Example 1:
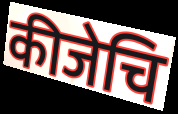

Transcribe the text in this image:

कीजेचि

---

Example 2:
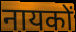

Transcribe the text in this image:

नायकों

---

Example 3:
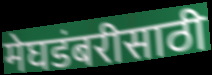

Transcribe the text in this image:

मेघडंबरीसाठी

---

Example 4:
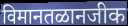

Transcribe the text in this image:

विमानतळानजीक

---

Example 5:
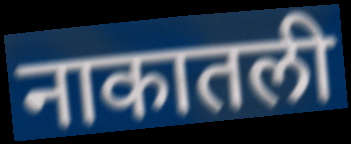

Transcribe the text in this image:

नाकातली